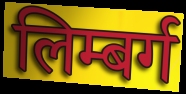
लिम्बर्ग